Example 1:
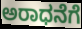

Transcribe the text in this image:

ಅರಾಧನೆಗೆ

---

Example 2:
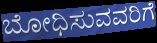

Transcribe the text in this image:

ಬೋಧಿಸುವವರಿಗೆ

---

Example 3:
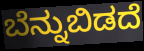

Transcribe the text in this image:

ಬೆನ್ನುಬಿಡದೆ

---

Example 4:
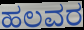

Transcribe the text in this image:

ಹಲವರ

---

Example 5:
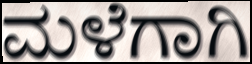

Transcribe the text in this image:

ಮಳೆಗಾಗಿ